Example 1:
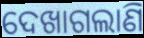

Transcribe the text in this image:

ଦେଖାଗଲାଣି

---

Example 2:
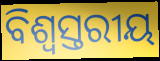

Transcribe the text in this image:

ବିଶ୍ବସ୍ତରୀୟ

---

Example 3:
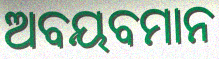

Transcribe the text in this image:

ଅବୟବମାନ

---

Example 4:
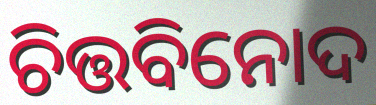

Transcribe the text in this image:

ଚିତ୍ତବିନୋଦ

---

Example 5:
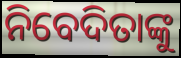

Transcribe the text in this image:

ନିବେଦିତାଙ୍କୁ